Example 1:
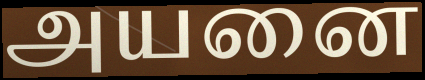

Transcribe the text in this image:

அயனை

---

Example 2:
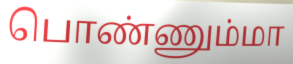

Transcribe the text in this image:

பொண்ணும்மா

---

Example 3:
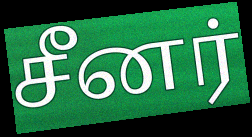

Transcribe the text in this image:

சீனர்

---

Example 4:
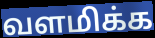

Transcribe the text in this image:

வளமிக்க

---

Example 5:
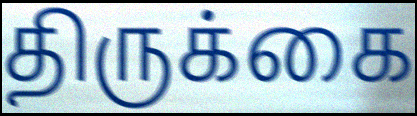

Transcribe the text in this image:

திருக்கை